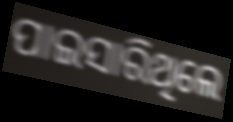
ପାଇସାରିଥିଲେ